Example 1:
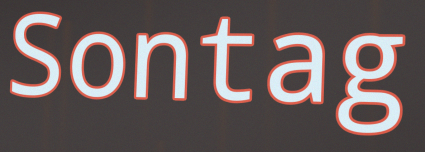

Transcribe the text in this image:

Sontag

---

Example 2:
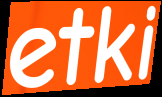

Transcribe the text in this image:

etki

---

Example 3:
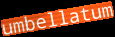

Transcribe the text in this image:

umbellatum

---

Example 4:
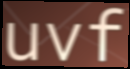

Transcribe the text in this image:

uvf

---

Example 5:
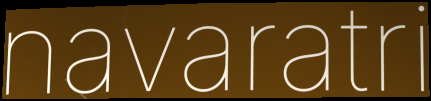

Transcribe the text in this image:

navaratri